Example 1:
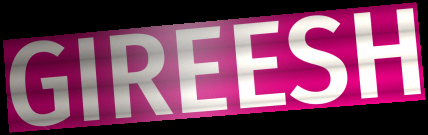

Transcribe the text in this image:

GIREESH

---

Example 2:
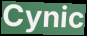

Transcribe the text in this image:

Cynic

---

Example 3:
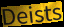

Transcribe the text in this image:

Deists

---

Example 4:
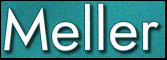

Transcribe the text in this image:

Meller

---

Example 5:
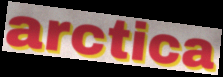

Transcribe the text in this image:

arctica